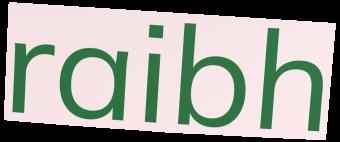
raibh